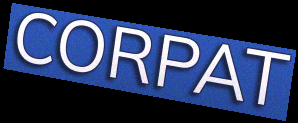
CORPAT